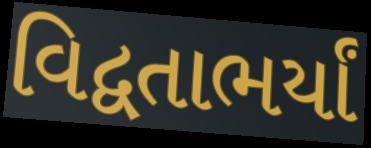
વિદ્વતાભર્યાં